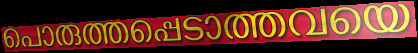
പൊരുത്തപ്പെടാത്തവയെ